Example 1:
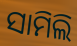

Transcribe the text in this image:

ସାମିଲି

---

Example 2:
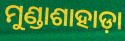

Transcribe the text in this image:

ମୁଣ୍ଡାଶାହାଡ଼ା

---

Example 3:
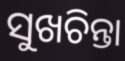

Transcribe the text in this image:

ସୁଖଚିନ୍ତା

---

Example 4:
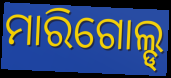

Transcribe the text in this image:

ମାରିଗୋଲ୍ଡ୍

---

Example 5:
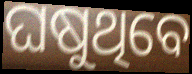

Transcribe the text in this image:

ଘଷୁଥିବେ